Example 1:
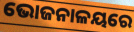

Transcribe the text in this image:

ଭୋଜନାଳୟରେ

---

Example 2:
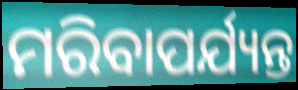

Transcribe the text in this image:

ମରିବାପର୍ଯ୍ୟନ୍ତ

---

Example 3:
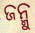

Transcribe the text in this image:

ଜନ୍ମୁ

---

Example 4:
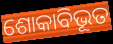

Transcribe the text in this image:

ଶୋକାବିଭୂତ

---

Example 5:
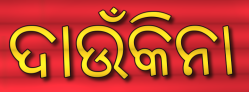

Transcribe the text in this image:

ଦାଉଁକିନା